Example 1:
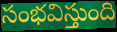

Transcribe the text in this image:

సంభవిస్తుంది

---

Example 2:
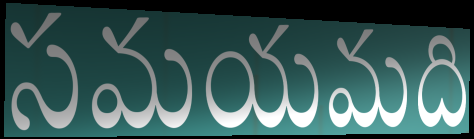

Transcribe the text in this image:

సమయమది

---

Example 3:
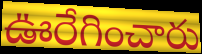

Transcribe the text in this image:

ఊరేగించారు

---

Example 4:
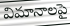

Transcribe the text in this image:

విమానాలపై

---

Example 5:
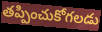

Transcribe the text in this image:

తప్పించుకోగలడు